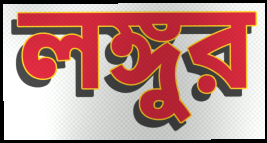
লঙ্গুর